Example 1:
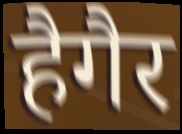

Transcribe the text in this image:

हैगैर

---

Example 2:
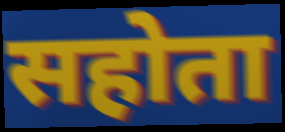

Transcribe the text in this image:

सहोता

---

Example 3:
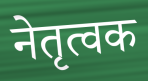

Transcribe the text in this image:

नेतृत्वक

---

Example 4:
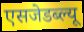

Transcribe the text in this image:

एसजेडब्ल्यू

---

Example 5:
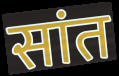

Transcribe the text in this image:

सांत